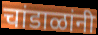
चांडाळांनी